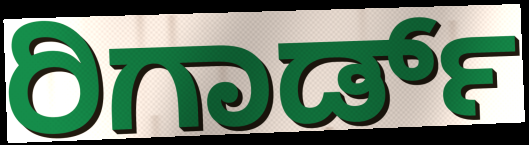
ರಿಗಾರ್ಡ್